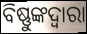
ବିଷ୍ଣୁଙ୍କଦ୍ୱାରା